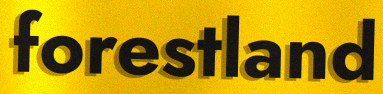
forestland